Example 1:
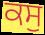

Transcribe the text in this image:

ਕਸੁ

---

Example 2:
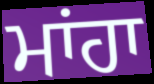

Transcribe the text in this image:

ਮਾਂਹਾ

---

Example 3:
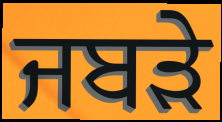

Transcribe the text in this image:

ਜਬੜੇ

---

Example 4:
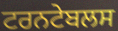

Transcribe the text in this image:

ਟਰਨਟੇਬਲਸ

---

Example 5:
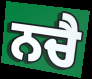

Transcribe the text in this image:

ਨਚੈ